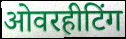
ओवरहीटिंग